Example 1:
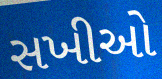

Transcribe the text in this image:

સખીઓ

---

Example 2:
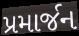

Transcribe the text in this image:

પ્રમાર્જન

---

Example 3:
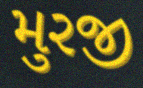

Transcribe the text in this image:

મુરજી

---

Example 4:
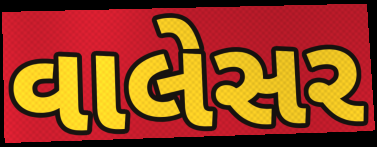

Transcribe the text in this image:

વાલેસર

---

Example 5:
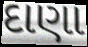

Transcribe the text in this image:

દાણા